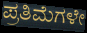
ಪ್ರತಿಮೆಗಳೇ